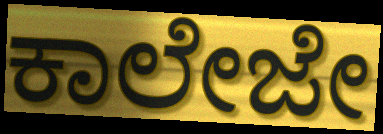
ಕಾಲೇಜೇ